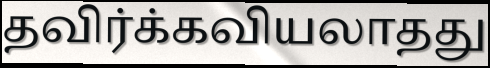
தவிர்க்கவியலாதது